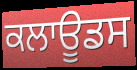
ਕਲਾਊਡਸ